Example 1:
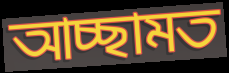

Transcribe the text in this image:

আচ্ছামত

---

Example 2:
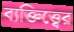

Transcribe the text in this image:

ব্যক্তিত্ত্বের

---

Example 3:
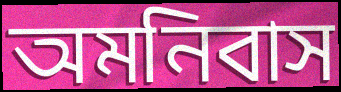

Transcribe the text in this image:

অমনিবাস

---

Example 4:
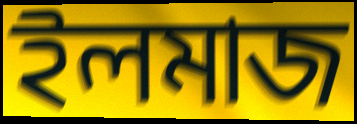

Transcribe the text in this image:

ইলমাজ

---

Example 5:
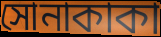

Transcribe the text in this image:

সোনাকাকা